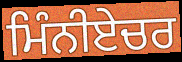
ਮਿੰਨੀਏਚਰ